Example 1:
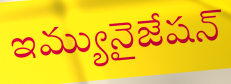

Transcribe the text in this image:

ఇమ్యునైజేషన్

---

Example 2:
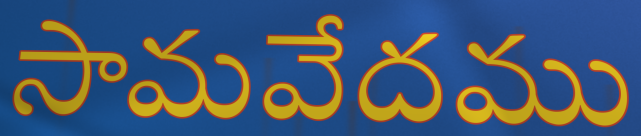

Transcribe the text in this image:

సామవేదము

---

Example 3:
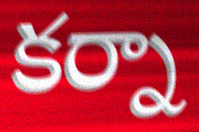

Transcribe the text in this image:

కర్నా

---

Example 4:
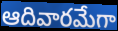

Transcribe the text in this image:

ఆదివారమేగా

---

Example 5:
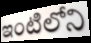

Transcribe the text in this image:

ఇంటిలోని